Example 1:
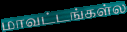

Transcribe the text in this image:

மாவட்டங்கள்ல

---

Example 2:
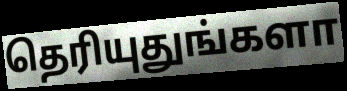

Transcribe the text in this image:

தெரியுதுங்களா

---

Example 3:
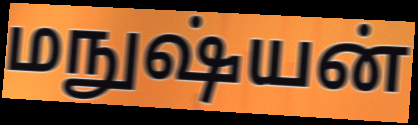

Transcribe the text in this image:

மநுஷ்யன்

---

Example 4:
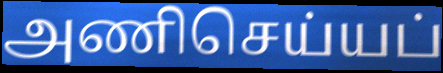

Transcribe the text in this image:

அணிசெய்யப்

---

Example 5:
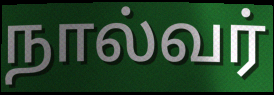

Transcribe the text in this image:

நால்வர்